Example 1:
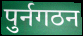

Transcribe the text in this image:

पुर्नगठन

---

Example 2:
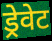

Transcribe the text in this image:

ड्रेवेट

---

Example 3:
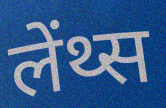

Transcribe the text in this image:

लेंथ्स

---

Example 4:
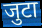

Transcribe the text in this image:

जुटा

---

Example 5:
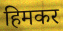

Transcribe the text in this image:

हिमकर